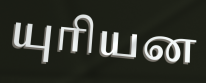
யுரியன